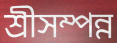
শ্রীসম্পন্ন